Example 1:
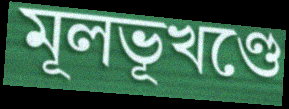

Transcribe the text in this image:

মূলভূখণ্ডে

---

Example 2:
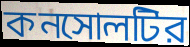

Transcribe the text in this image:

কনসোলটির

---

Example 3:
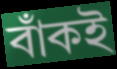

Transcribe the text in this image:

বাঁকই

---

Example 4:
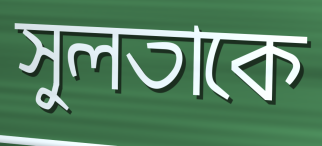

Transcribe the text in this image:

সুলতাকে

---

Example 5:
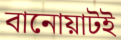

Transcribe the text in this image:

বানোয়াটই